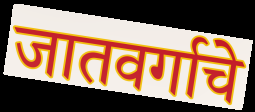
जातवर्गाचे